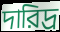
দারিদ্র